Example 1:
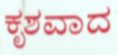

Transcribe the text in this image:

ಕೃಶವಾದ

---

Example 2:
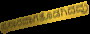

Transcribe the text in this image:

ಪ್ರಸಾರವಾಗತೊಡಗಿದವು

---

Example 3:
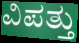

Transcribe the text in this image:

ವಿಪತ್ತು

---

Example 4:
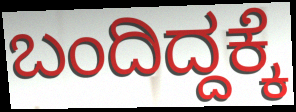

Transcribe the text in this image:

ಬಂದಿದ್ದಕ್ಕೆ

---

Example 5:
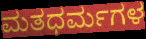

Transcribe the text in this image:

ಮತಧರ್ಮಗಳ